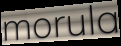
morula